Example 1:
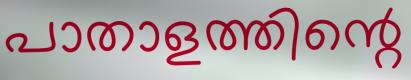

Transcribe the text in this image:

പാതാളത്തിന്റെ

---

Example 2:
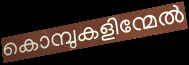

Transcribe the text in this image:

കൊമ്പുകളിന്മേൽ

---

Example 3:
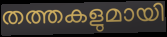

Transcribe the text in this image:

തത്തകളുമായി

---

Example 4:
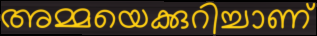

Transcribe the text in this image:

അമ്മയെക്കുറിച്ചാണ്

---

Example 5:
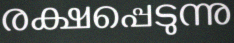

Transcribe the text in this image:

രക്ഷപ്പെടുന്നു